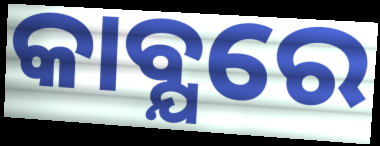
କାବ୍ଯରେ